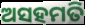
ଅସହମତି